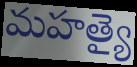
మహత్యై